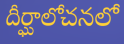
దీర్ఘాలోచనలో